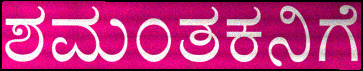
ಶಮಂತಕನಿಗೆ